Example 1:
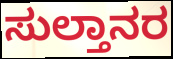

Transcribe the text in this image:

ಸುಲ್ತಾನರ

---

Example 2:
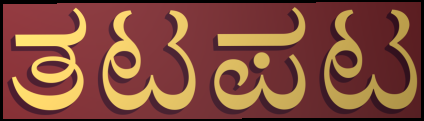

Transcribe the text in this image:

ತಟಪಟ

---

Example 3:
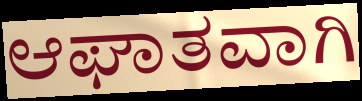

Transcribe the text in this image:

ಆಘಾತವಾಗಿ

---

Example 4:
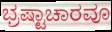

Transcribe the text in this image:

ಭ್ರಷ್ಟಾಚಾರವೂ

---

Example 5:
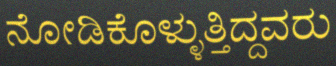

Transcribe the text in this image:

ನೋಡಿಕೊಳ್ಳುತ್ತಿದ್ದವರು